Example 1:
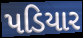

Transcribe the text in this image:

પડિયાર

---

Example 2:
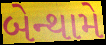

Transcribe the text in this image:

બેન્થામે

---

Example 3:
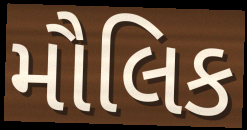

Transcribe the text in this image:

મૌલિક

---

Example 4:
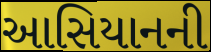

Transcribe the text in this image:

આસિયાનની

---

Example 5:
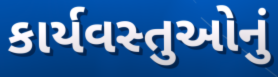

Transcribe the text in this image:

કાર્યવસ્તુઓનું